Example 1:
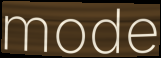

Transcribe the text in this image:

mode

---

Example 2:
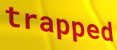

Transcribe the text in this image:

trapped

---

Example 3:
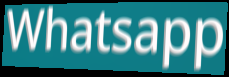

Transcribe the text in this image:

Whatsapp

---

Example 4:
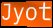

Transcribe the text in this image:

Jyot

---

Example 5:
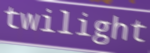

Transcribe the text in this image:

twilight